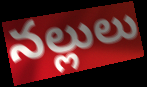
నల్లులు